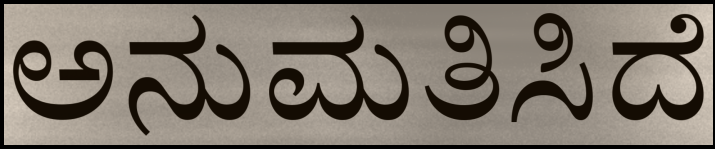
ಅನುಮತಿಸಿದೆ